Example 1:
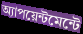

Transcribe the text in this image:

অ্যাপয়েন্টমেন্টে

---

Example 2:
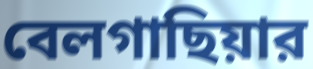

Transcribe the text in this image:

বেলগাছিয়ার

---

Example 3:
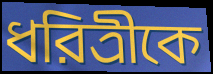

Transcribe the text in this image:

ধরিত্রীকে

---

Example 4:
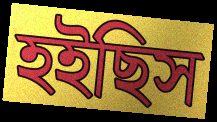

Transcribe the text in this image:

হইছিস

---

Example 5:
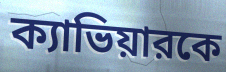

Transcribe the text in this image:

ক্যাভিয়ারকে